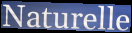
Naturelle